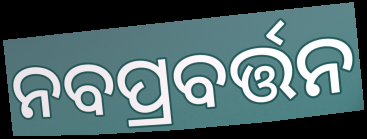
ନବପ୍ରବର୍ତ୍ତନ